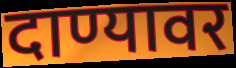
दाण्यावर